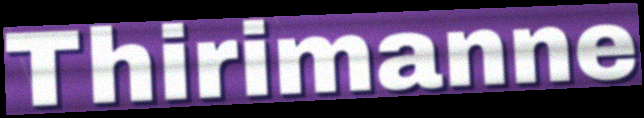
Thirimanne